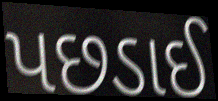
પછડાઈ